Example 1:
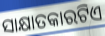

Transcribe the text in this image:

ସାକ୍ଷାତକାରଟିଏ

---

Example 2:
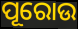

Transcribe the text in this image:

ପୂରୋଉ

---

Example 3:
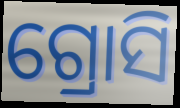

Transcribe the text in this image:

ଗ୍ରୋସି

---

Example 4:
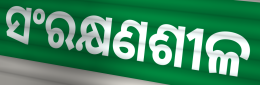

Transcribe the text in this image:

ସଂରକ୍ଷଣଶୀଳ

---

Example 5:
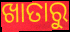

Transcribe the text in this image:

ଖାତାରୁ